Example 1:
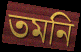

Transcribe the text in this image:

তমনি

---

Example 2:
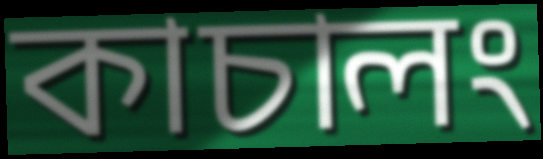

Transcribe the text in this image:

কাচালং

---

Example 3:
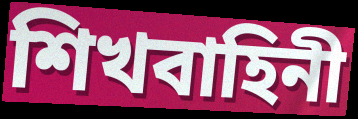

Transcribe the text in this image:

শিখবাহিনী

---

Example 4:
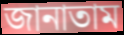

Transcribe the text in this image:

জানাতাম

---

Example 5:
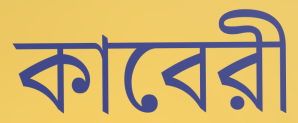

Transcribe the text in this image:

কাবেরী